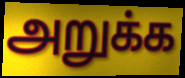
அறுக்க